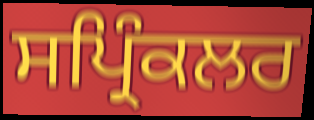
ਸਪ੍ਰਿੰਕਲਰ